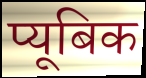
प्यूबिक